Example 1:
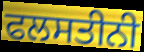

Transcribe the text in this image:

ਫਲਸਤੀਨੀ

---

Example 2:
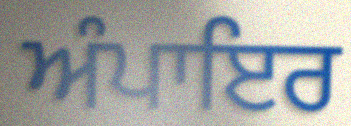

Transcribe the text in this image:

ਅੰਪਾਇਰ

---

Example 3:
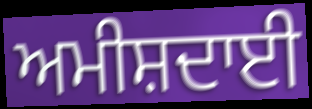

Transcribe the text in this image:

ਅਮੀਸ਼ਦਾਈ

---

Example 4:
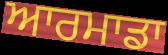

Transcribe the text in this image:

ਆਰਮਾਡਾ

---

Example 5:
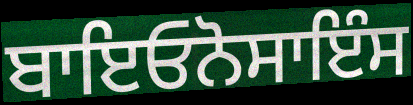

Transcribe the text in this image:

ਬਾਇਓਨੋਸਾਇੰਸ